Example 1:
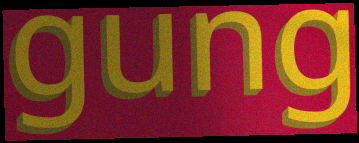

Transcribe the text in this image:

gung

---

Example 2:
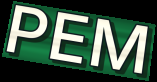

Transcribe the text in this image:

PEM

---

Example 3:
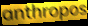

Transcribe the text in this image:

anthropos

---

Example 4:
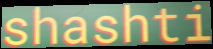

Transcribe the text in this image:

shashti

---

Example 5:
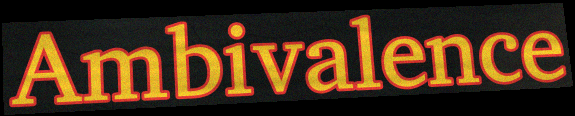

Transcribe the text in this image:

Ambivalence